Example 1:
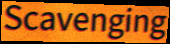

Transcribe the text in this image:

Scavenging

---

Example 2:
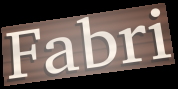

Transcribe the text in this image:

Fabri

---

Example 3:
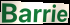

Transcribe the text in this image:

Barrie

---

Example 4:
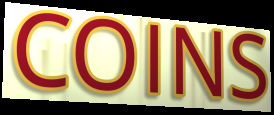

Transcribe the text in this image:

COINS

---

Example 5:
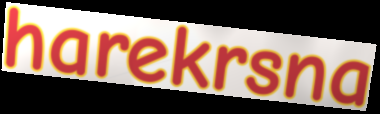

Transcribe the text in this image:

harekrsna